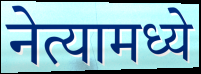
नेत्यामध्ये